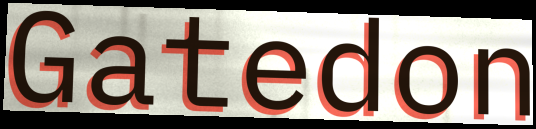
Gatedon